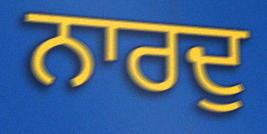
ਨਾਰਦੁ